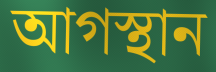
আগস্থান